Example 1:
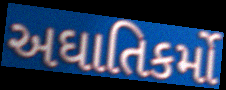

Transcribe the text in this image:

અઘાતિકર્મો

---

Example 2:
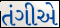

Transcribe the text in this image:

તંગીએ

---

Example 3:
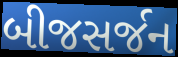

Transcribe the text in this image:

બીજસર્જન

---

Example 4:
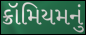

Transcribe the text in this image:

ક્રૉમિયમનું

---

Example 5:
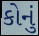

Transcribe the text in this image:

કોનું